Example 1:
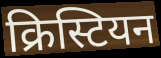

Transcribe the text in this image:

क्रिस्टियन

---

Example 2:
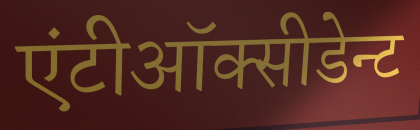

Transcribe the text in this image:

एंटीऑक्सीडेन्ट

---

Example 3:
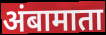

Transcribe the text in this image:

अंबामाता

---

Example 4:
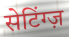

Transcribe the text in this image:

सेटिंग्ज़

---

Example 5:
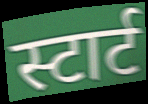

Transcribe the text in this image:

स्टार्ट